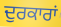
ਦੁਰਕਾਰਾਂ